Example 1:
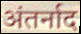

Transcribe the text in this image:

अंतर्नाद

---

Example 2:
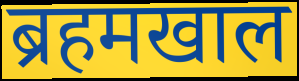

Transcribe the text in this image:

ब्रहमखाल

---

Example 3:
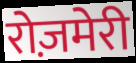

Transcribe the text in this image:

रोज़मेरी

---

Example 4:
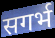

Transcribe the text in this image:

सगर्भ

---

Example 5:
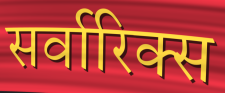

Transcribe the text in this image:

सर्वारिक्स